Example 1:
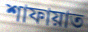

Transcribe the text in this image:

শাফায়াত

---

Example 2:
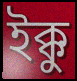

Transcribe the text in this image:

ইক্কু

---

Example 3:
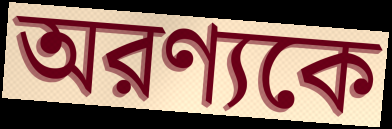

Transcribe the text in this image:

অরণ্যকে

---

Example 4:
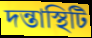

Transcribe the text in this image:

দন্তাস্থিটি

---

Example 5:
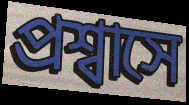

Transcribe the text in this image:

প্রশ্বাসে